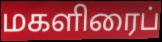
மகளிரைப்